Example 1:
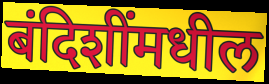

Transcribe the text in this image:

बंदिशींमधील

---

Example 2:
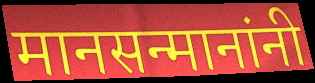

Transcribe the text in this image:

मानसन्मानांनी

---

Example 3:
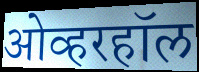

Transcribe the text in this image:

ओव्हरहॉल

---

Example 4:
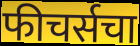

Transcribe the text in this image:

फीचर्सचा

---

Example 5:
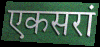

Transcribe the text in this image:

एकसरां